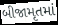
બીજામૃતમાં